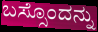
ಬಸ್ಸೊಂದನ್ನು